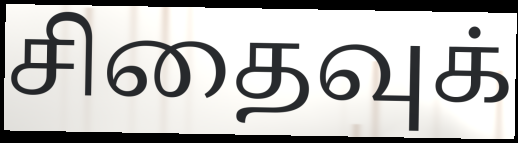
சிதைவுக்